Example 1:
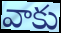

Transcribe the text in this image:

వాకు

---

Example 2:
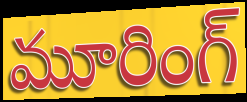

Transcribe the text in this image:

మూరింగ్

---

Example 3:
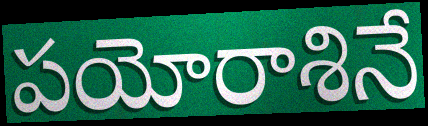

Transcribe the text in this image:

పయోరాశినే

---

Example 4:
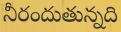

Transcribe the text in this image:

నీరందుతున్నది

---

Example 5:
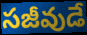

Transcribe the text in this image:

సజీవుడే